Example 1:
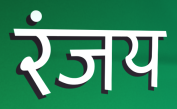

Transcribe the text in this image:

रंजय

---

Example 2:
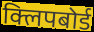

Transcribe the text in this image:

क्लिपबोर्ड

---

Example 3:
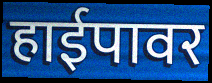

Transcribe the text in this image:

हाईपावर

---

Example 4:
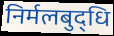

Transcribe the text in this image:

निर्मलबुद्धि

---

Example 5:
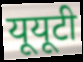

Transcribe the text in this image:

यूयूटी